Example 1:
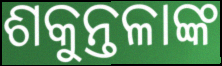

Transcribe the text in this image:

ଶକୁନ୍ତଳାଙ୍କ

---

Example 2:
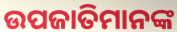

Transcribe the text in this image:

ଉପଜାତିମାନଙ୍କ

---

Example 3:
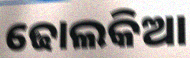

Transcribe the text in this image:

ଢୋଲକିଆ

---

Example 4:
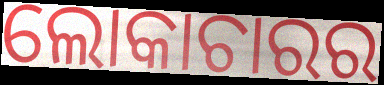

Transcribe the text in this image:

ଲୋକାଚାରର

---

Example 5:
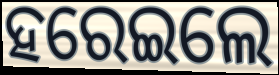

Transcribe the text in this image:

ହରେଇଲେ